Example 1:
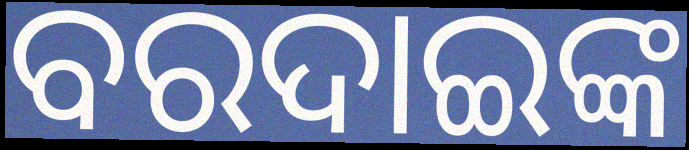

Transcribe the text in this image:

ବରଦାଇଙ୍କ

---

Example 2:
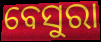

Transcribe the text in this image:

ବେସୁରା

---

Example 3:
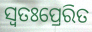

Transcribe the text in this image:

ସ୍ୱତଃପ୍ରେରିତ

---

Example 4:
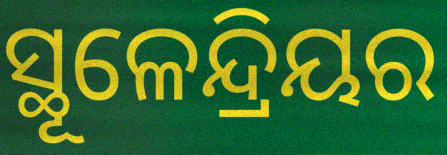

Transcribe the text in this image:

ସ୍ଥୂଳେନ୍ଦ୍ରିୟର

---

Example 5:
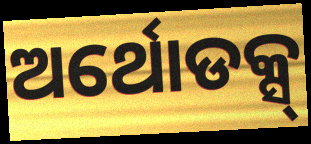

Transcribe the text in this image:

ଅର୍ଥୋଡକ୍ସ୍